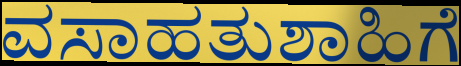
ವಸಾಹತುಶಾಹಿಗೆ